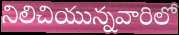
నిలిచియున్నవారిలో